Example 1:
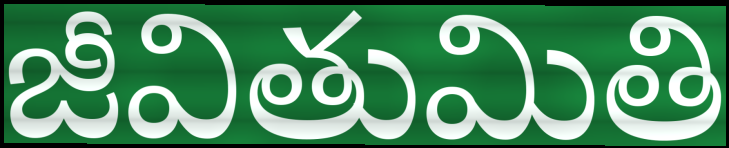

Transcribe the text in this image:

జీవితుమితి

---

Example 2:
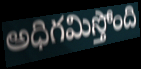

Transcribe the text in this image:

అధిగమిస్తోంది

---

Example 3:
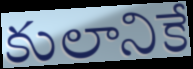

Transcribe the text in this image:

కులానికే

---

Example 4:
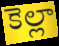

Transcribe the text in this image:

కెల్లా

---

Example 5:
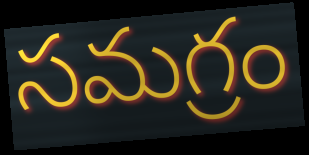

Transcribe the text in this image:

సమగ్రం